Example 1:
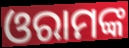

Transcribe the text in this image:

ଓରାମଙ୍କ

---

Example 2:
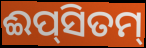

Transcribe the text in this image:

ଈପ୍‌ସିତମ୍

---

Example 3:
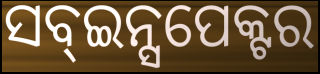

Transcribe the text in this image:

ସବ୍ଇନ୍ସପେକ୍ଟର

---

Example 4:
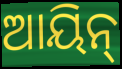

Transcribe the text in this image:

ଆୟିନ୍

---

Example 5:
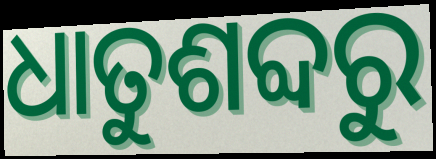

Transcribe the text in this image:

ଧାତୁଶବ୍ଦରୁ